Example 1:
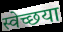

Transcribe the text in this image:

स्वेच्छया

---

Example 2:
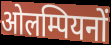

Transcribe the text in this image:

ओलम्पियनों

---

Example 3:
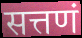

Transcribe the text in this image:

सत्तणं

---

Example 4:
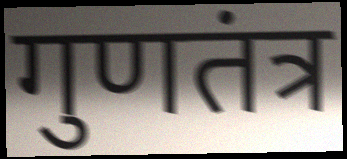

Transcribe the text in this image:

गुणतंत्र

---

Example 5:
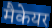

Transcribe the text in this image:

मैकेयर